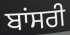
ਬਾਂਸਰੀ